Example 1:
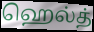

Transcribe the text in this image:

ஹெல்த்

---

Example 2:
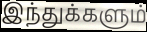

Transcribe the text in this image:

இந்துக்களும்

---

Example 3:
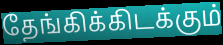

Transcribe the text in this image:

தேங்கிக்கிடக்கும்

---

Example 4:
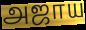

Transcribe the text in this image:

அஜாய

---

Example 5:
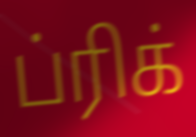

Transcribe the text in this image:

ப்ரிக்